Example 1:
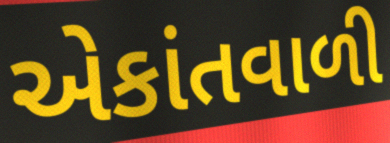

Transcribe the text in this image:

એકાંતવાળી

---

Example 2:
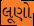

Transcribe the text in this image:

લૂણો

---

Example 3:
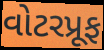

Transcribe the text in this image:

વોટરપ્રૂફ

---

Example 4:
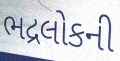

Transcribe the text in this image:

ભદ્રલોકની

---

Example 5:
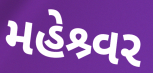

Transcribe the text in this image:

મહેશ્ર્વર